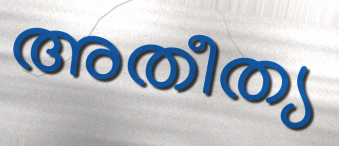
അതീത്യ